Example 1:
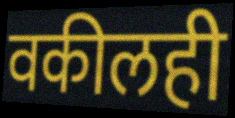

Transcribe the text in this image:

वकीलही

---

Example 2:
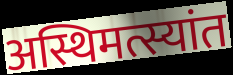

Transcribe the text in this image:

अस्थिमत्स्यांत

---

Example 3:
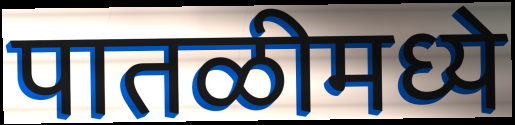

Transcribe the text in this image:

पातळीमध्ये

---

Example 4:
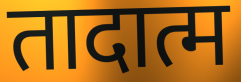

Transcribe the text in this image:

तादात्म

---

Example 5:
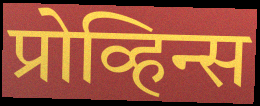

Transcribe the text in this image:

प्रोव्हिन्स